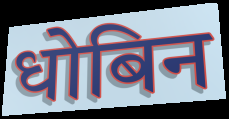
धोबिन